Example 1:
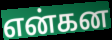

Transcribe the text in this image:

என்கன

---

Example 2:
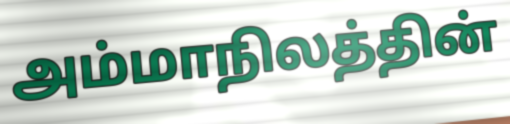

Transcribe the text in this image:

அம்மாநிலத்தின்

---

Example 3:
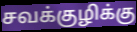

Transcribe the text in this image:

சவக்குழிக்கு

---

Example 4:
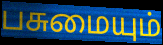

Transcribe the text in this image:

பசுமையும்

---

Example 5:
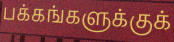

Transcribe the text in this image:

பக்கங்களுக்குக்